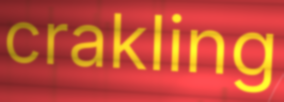
crakling